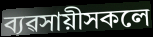
ব্যৱসায়ীসকলে